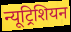
न्यूट्रिशियन